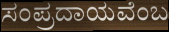
ಸಂಪ್ರದಾಯವೆಂಬ